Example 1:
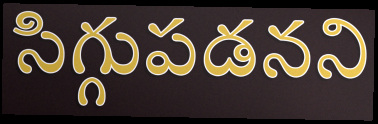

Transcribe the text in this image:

సిగ్గుపడనని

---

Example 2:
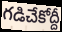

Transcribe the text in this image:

గడిచేకోద్దీ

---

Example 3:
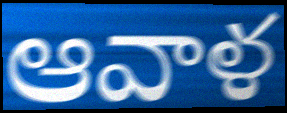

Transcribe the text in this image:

ఆవాళ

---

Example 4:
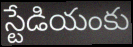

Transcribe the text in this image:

స్టేడియంకు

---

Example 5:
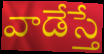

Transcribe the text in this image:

వాడేస్తే